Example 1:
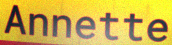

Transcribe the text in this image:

Annette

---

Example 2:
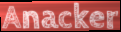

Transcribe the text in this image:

Anacker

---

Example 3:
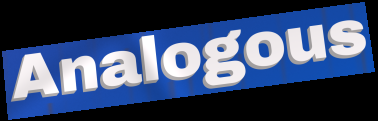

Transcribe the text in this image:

Analogous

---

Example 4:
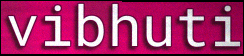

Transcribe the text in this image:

vibhuti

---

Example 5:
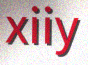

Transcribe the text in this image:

xiiy